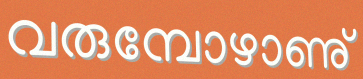
വരുമ്പോഴാണു്